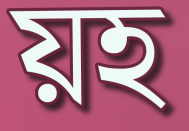
য়হ